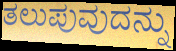
ತಲುಪುವುದನ್ನು